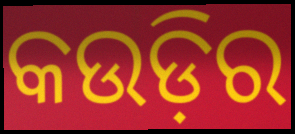
କଉଡ଼ିର